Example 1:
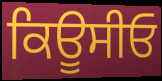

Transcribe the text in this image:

ਕਿਊਸੀਓ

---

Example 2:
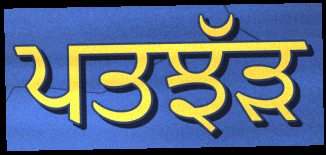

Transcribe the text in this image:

ਪਤਝੱੜ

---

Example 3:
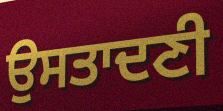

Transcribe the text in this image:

ਉਸਤਾਦਣੀ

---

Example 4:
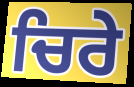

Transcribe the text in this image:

ਚਿਰੇ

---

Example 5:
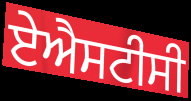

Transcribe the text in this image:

ਏਐਸਟੀਸੀ